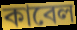
কাবেল